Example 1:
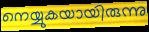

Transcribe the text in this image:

നെയ്യുകയായിരുന്നു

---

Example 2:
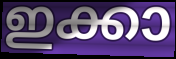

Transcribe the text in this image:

ഇക്കാ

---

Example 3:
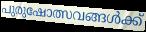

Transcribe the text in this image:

പുരുഷോത്സവങ്ങൾക്ക്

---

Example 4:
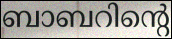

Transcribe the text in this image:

ബാബറിന്റെ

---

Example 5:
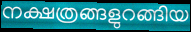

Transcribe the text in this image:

നക്ഷത്രങ്ങളുറങ്ങിയ